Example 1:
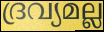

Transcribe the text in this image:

ദ്രവ്യമല്ല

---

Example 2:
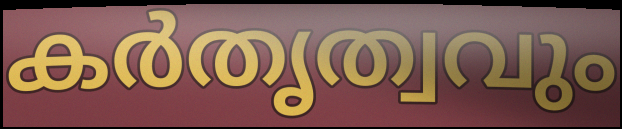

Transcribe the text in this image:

കർതൃത്വവും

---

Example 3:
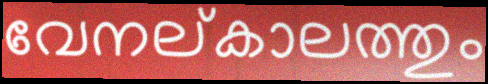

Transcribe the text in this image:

വേനല്കാലത്തും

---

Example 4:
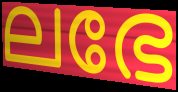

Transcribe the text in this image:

ലഭേ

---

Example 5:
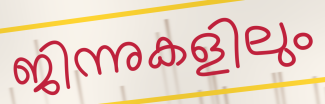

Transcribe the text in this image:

ജിന്നുകളിലും